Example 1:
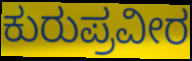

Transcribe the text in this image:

ಕುರುಪ್ರವೀರ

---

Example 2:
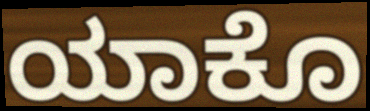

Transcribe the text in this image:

ಯಾಕೊ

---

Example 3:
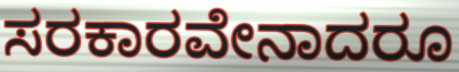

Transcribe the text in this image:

ಸರಕಾರವೇನಾದರೂ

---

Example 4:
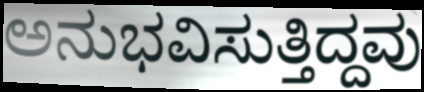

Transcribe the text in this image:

ಅನುಭವಿಸುತ್ತಿದ್ದವು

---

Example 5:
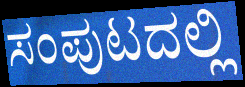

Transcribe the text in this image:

ಸಂಪುಟದಲ್ಲಿ